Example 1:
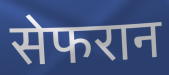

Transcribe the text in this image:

सेफरान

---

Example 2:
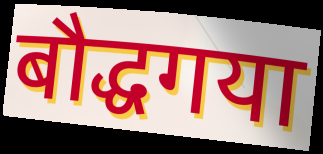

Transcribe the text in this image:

बौद्धगया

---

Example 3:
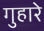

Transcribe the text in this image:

गुहारे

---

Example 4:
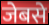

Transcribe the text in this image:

जेबसे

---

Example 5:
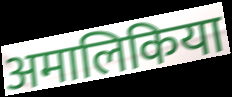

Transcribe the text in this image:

अमालिकिया